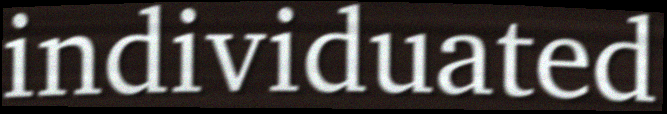
individuated